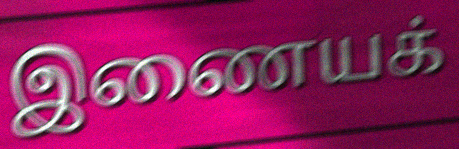
இணையக்